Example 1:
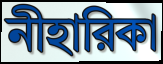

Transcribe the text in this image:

নীহারিকা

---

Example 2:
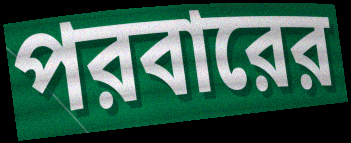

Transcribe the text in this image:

পরবারের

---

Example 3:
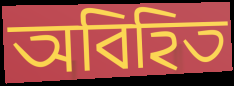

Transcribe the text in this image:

অবিহিত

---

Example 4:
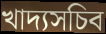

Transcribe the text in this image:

খাদ্যসচিব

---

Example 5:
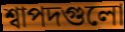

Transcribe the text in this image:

শ্বাপদগুলো